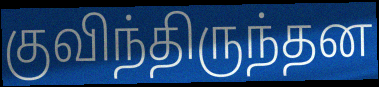
குவிந்திருந்தன